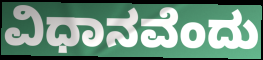
ವಿಧಾನವೆಂದು